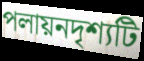
পলায়নদৃশ্যটি